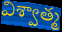
విశ్వాత్మ